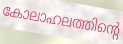
കോലാഹലത്തിന്റെ